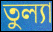
তুল্যা